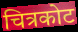
चित्रकोट